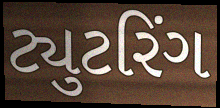
ટ્યુટરિંગ